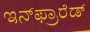
ಇನ್‌ಫ್ರಾರೆಡ್